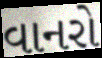
વાનરો